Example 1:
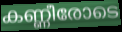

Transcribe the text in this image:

കണ്ണീരോടെ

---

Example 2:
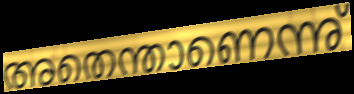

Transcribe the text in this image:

അതെന്താണെന്നു്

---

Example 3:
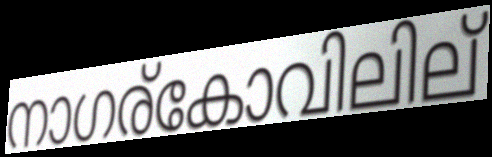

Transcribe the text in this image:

നാഗര്കോവിലില്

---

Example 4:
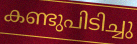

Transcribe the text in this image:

കണ്ടുപിടിച്ചു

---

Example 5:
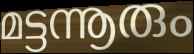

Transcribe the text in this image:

മട്ടന്നൂരും